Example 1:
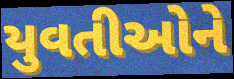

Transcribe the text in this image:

યુવતીઓને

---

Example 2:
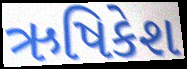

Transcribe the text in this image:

ઋષિકેશ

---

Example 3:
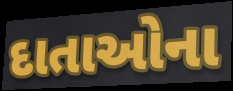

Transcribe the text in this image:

દાતાઓના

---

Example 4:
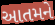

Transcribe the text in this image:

આતમને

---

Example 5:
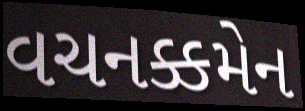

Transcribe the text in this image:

વચનક્કમેન